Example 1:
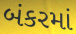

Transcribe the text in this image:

બંકરમાં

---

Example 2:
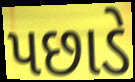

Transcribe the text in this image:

પછાડે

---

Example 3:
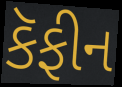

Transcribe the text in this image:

કૅફીન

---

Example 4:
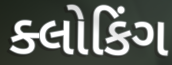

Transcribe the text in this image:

ક્લોકિંગ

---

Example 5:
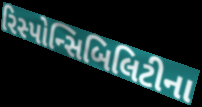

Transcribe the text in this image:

રિસ્પોન્સિબિલિટીના